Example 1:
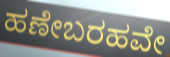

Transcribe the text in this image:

ಹಣೇಬರಹವೇ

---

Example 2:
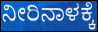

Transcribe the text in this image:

ನೀರಿನಾಳಕ್ಕೆ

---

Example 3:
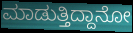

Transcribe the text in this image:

ಮಾಡುತ್ತಿದ್ದಾನೋ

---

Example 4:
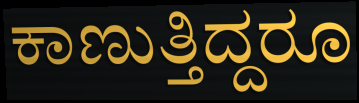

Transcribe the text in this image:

ಕಾಣುತ್ತಿದ್ದರೂ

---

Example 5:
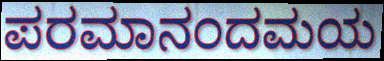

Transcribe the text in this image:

ಪರಮಾನಂದಮಯ